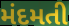
મંદમતી